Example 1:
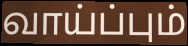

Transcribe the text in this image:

வாய்ப்பும்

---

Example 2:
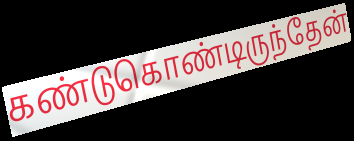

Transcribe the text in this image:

கண்டுகொண்டிருந்தேன்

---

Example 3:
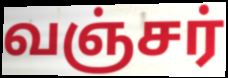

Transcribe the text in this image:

வஞ்சர்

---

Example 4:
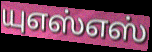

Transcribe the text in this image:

யுஎஸ்எஸ்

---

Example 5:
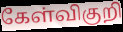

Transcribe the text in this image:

கேள்விகுறி